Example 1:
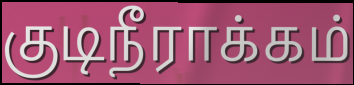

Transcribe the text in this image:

குடிநீராக்கம்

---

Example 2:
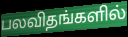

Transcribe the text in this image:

பலவிதங்களில்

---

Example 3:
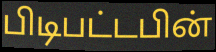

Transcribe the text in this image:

பிடிபட்டபின்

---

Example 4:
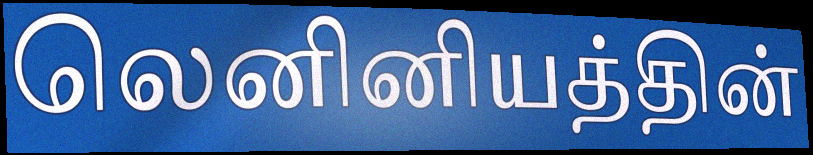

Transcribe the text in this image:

லெனினியத்தின்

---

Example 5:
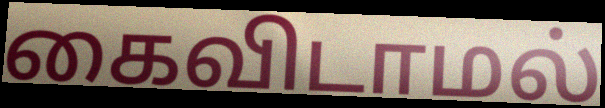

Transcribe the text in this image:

கைவிடாமல்